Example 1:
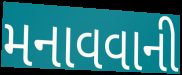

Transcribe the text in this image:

મનાવવાની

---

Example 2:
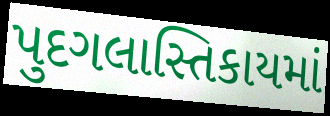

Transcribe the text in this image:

પુદગલાસ્તિકાયમાં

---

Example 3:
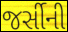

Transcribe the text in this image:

જર્સીની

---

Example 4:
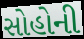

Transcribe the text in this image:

સોહોની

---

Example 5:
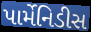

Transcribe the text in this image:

પાર્મેનિડીસ